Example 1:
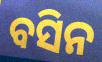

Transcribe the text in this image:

ବସିନ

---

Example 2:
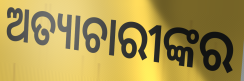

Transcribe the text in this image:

ଅତ୍ୟାଚାରୀଙ୍କର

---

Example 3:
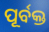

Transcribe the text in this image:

ପୂର୍ବକ୍ତ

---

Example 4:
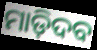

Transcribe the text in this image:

ମାଡ଼ିଦବ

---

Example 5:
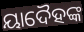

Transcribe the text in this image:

ୟାଦୈହଙ୍କ